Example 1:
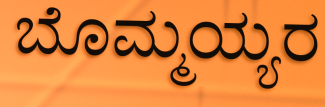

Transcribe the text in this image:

ಬೊಮ್ಮಯ್ಯರ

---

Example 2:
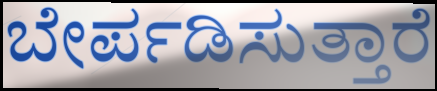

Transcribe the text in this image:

ಬೇರ್ಪಡಿಸುತ್ತಾರೆ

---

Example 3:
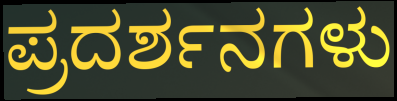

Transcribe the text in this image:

ಪ್ರದರ್ಶನಗಳು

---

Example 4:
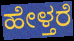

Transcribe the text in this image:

ಹೇಳ್ತರೆ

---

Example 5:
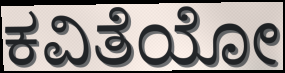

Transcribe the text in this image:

ಕವಿತೆಯೋ